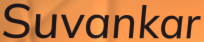
Suvankar